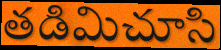
తడిమిచూసి